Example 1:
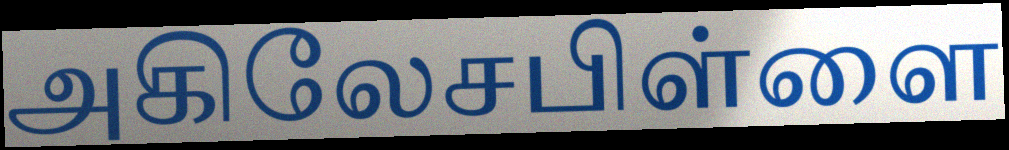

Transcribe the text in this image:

அகிலேசபிள்ளை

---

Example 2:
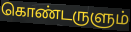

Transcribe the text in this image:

கொண்டருளும்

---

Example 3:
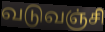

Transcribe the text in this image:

வடுவஞ்சி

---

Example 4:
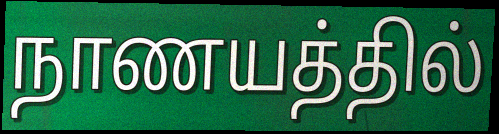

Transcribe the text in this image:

நாணயத்தில்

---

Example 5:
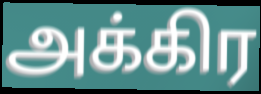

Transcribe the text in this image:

அக்கிர